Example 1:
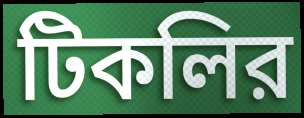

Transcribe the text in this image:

টিকলির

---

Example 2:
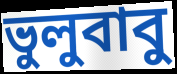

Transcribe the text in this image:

ভুলুবাবু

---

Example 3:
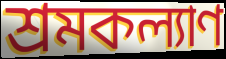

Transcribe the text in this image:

শ্রমকল্যাণ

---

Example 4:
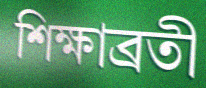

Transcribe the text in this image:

শিক্ষাব্রতী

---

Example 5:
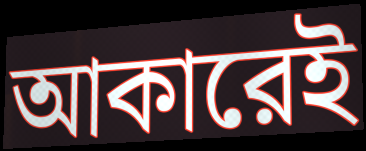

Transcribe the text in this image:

আকারেই